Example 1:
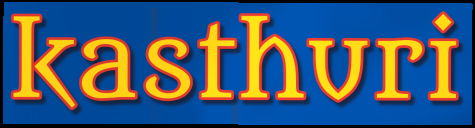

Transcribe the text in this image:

kasthuri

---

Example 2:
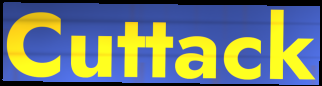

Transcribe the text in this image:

Cuttack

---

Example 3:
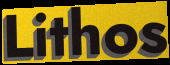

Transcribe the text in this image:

Lithos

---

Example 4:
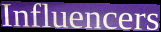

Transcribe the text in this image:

Influencers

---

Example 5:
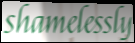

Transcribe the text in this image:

shamelessly